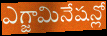
ఎగ్జామినేషన్లో